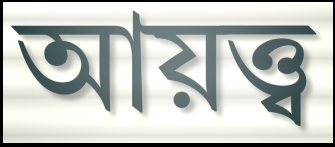
আয়ত্ত্ব